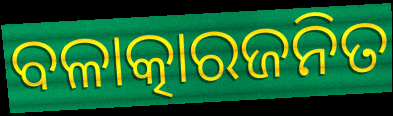
ବଳାତ୍କାରଜନିତ